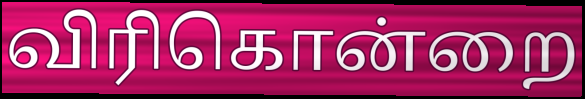
விரிகொன்றை